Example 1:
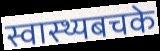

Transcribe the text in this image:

स्वास्थ्यबचके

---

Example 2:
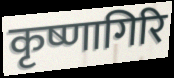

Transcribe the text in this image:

कृष्णागिरि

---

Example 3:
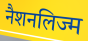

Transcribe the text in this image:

नैशनलिज्म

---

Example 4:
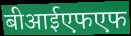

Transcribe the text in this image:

बीआईएफएफ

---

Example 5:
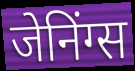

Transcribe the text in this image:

जेनिंग्स